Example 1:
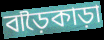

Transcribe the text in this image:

বাড়ৈকাড়া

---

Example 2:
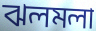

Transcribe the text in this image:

ঝলমলা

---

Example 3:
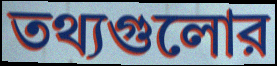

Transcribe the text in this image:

তথ্যগুলোর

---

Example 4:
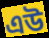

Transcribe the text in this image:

এউ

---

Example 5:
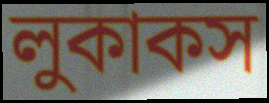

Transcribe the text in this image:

লুকাকস